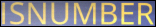
ISNUMBER